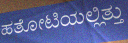
ಹತೋಟಿಯಲ್ಲಿತ್ತು